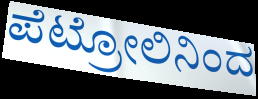
ಪೆಟ್ರೋಲಿನಿಂದ